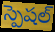
స్పెషల్